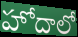
హోదాలో